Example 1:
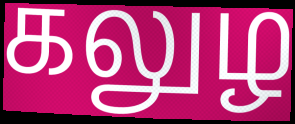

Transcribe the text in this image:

கலுழ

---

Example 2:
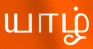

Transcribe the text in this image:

யாழ்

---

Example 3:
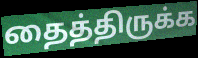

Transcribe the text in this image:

தைத்திருக்க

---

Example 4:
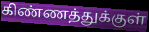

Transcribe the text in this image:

கிண்ணத்துக்குள்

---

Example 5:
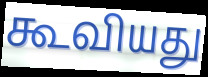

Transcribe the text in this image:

கூவியது